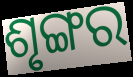
ଶୃଙ୍ଗର